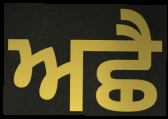
ਅਛੈ